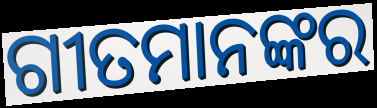
ଗୀତମାନଙ୍କର